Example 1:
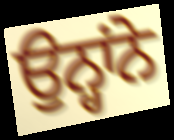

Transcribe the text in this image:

ਉਨ੍ਹਾਂਨੇ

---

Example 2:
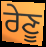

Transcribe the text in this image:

ਰੇਣੂ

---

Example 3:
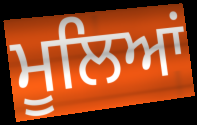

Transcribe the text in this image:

ਮੂਲਿਆਂ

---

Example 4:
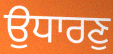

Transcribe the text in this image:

ਉਧਾਰਣੁ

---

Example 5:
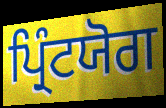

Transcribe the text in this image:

ਪ੍ਰਿੰਟਯੋਗ